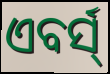
ଏବର୍ସ୍